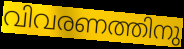
വിവരണത്തിനു